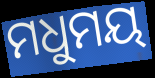
ମଧୁମୟ